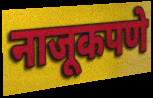
नाजूकपणे